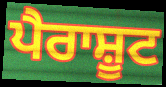
ਪੈਰਾਸ਼ੂਟ